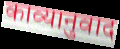
काव्यानुवाद